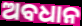
ଅବଧାନ